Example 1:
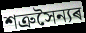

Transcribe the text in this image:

শত্ৰুসৈন্যৰ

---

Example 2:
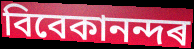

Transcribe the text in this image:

বিবেকানন্দৰ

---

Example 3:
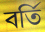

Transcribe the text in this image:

বৰ্তি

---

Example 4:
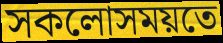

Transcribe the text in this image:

সকলোসময়তে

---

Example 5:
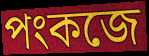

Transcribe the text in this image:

পংকজে